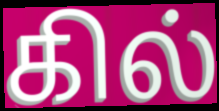
கில்